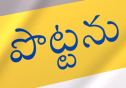
పొట్టను